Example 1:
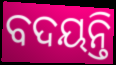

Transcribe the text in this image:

ବଦୟନ୍ତି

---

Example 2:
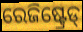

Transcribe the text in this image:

ରେଜିଷ୍ଟ୍ରେଡ୍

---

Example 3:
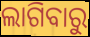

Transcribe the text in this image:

ଲାଗିବାରୁ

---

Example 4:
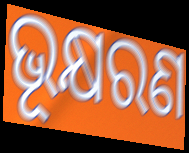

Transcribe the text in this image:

ଭୂକ୍ଷରଣ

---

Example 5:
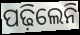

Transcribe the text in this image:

ପଢ଼ିଲେନି